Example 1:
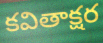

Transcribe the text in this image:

కవితాక్షర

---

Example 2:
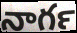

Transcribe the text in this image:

నాగర్‍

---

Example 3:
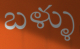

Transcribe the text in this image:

బళ్ళు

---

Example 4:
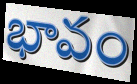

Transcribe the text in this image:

భావం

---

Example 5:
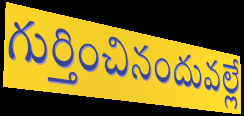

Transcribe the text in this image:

గుర్తించినందువల్లే